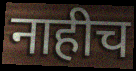
नाहीच